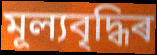
মূল্যবৃদ্ধিৰ